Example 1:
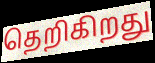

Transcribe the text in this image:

தெறிகிறது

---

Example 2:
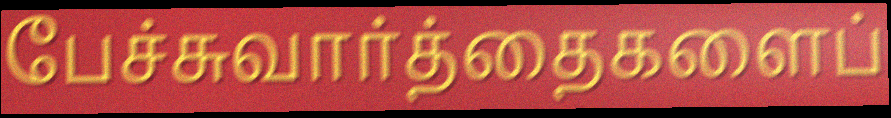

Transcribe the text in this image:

பேச்சுவார்த்தைகளைப்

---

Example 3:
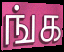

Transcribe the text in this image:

ங்க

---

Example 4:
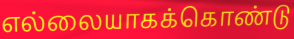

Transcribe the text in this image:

எல்லையாகக்கொண்டு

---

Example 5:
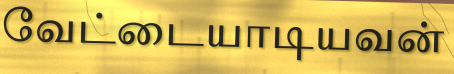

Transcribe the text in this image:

வேட்டையாடியவன்